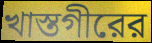
খাস্তগীরের